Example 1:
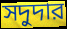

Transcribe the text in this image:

সদুদার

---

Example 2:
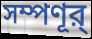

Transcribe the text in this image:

সম্পণূর্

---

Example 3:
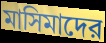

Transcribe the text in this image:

মাসিমাদের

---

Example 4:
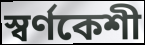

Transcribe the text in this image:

স্বর্ণকেশী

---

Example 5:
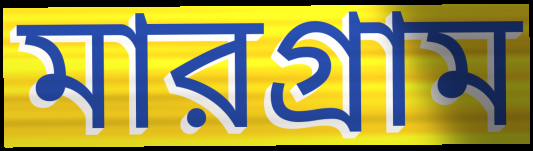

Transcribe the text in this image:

মারগ্রাম